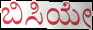
ಬಿಸಿಯೇ